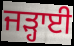
ਜੜ੍ਹਾਈ